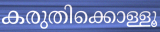
കരുതിക്കൊള്ളൂ